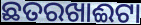
ଛତରଖାଈଟା